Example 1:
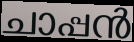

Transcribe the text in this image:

ചാപ്പൻ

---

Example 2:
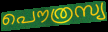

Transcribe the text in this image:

പൌത്രസ്യ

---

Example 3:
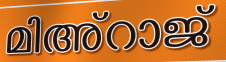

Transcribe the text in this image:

മിഅ്റാജ്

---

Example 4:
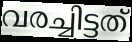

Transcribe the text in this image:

വരച്ചിട്ടത്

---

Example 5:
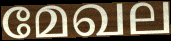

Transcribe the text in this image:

മേഖല